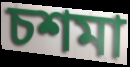
চশমা